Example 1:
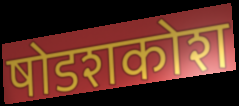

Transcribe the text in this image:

षोडशकोश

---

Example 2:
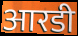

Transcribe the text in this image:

आरडी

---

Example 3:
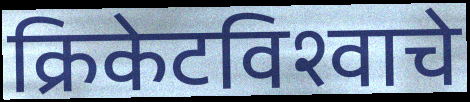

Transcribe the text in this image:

क्रिकेटविश्वाचे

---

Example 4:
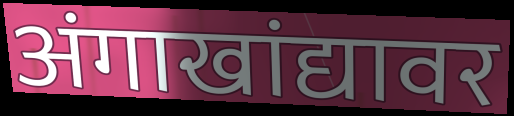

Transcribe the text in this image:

अंगाखांद्यावर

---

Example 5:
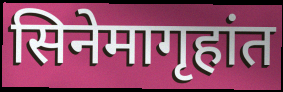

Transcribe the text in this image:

सिनेमागृहांत